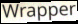
Wrapper